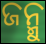
ଜନ୍ମୁ